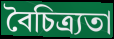
বৈচিত্ৰ্যতা